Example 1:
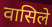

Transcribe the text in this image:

वासिले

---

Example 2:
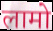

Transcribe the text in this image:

लामो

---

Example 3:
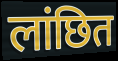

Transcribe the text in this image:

लांछित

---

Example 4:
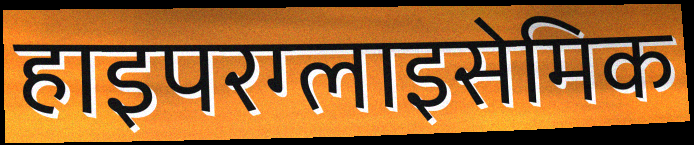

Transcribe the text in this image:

हाइपरग्लाइसेमिक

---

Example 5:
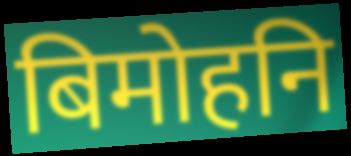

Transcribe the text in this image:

बिमोहनि